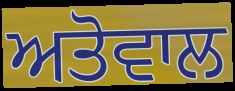
ਅਤੋਵਾਲ